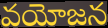
వయోజన